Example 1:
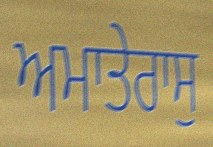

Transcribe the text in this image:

ਅਮਾਤੇਰਾਸੁ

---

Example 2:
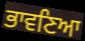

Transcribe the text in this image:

ਭਾਵਣਿਆ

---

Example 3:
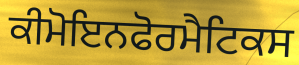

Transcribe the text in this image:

ਕੀਮੋਇਨਫੋਰਮੈਟਿਕਸ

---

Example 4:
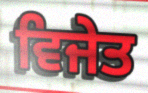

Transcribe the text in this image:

ਵਿਜੇਤ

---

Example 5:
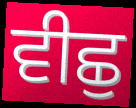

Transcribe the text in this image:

ਵੀਛੁ